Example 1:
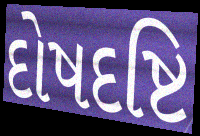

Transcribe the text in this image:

દોષદષ્ટિ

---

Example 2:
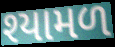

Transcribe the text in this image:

શ્યામળ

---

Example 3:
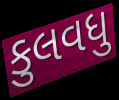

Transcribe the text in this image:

કુલવધુ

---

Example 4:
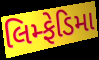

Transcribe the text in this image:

લિમ્ફેડિમા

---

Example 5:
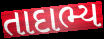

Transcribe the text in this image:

તાદાભ્ય